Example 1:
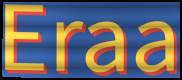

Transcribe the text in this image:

Eraa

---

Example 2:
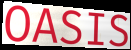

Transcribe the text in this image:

OASIS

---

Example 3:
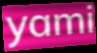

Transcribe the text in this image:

yami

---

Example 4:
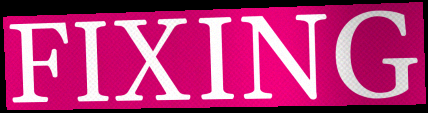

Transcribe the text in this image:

FIXING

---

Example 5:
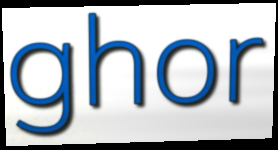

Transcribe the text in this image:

ghor